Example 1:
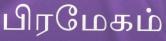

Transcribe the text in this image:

பிரமேகம்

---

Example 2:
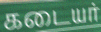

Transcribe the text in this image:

கடையர்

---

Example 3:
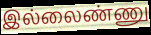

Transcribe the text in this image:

இல்லைண்ணு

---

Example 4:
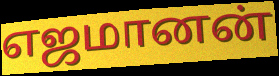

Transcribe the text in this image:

எஜமானன்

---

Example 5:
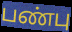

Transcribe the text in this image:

பண்பு